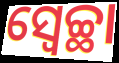
ସ୍ବେଚ୍ଛା